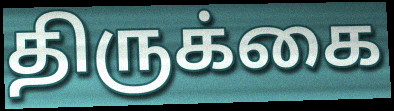
திருக்கை